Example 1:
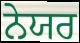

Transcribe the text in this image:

ਨੇਯਰ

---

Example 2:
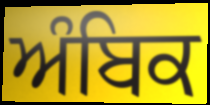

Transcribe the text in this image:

ਅੰਬਿਕ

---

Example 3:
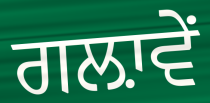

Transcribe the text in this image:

ਗਲ਼ਾਵੇਂ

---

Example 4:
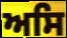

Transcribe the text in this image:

ਅਸਿ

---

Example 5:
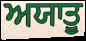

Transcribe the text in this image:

ਅਯਾਤੂ